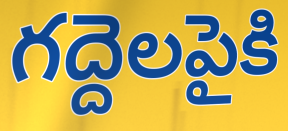
గద్దెలపైకి